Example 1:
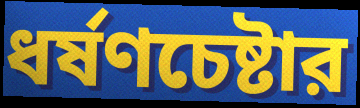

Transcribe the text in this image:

ধর্ষণচেষ্টার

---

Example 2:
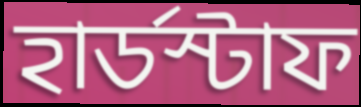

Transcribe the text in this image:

হার্ডস্টাফ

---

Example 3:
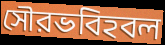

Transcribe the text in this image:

সৌরভবিহবল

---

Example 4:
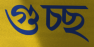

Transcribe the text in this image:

গুচ্ছ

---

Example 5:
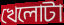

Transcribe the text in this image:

খেলোটা